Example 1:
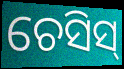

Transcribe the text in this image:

ଚେସିସ୍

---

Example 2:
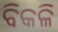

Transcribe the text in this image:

ବିକଳି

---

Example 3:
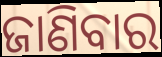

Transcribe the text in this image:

ଜାଣିବାର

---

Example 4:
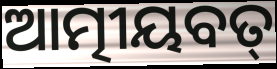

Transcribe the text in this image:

ଆତ୍ମୀୟବତ୍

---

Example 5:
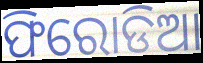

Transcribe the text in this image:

ଫିରୋଡିଆ